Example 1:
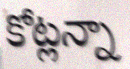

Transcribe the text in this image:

కోట్లన్నా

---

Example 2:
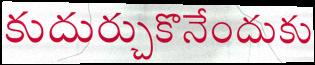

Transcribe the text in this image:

కుదుర్చుకొనేందుకు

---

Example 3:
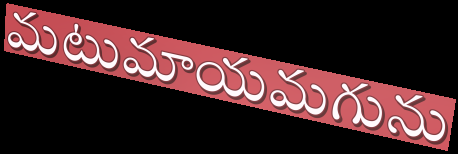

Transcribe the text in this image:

మటుమాయమగును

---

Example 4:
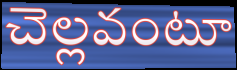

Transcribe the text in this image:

చెల్లవంటూ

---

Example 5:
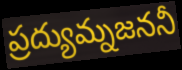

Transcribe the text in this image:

ప్రద్యుమ్నజననీ